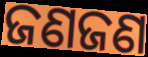
ଜଣଜଣ